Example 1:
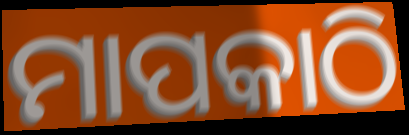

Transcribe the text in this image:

ମାପକାଠି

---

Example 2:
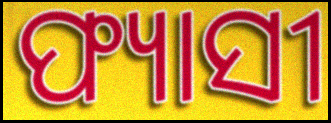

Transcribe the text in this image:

ଫ୍ୟାସୀ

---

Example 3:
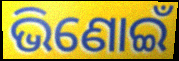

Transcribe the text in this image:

ଭିଣୋଇଁ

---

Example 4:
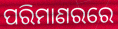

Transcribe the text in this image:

ପରିମାଣରରେ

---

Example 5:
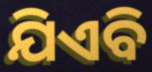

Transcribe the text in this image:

ଯିଏବି